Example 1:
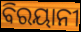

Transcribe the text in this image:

ବିରୟାନୀ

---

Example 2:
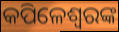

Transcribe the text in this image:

କପିଳେଶ୍ବରଙ୍କ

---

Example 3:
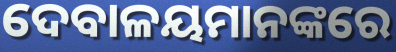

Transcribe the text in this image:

ଦେବାଳୟମାନଙ୍କରେ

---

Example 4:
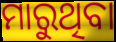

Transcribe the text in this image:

ମାରୁଥିବା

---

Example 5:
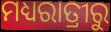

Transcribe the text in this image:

ମଧ୍ୟରାତ୍ରୀରୁ